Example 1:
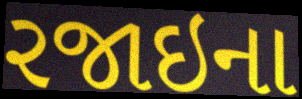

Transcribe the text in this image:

રજાઇના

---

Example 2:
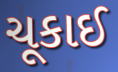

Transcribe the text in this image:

ચૂકાઈ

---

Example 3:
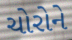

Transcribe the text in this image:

ચોરોને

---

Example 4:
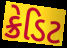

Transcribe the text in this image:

ક્રેડિટ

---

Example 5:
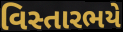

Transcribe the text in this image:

વિસ્તારભયે